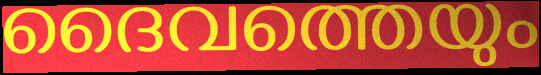
ദൈവത്തെയും